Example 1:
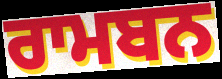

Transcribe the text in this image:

ਰਾਮਬਨ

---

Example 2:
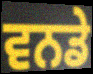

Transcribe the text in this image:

ਵਨਡੇ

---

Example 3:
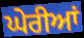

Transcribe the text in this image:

ਘੇਰੀਆਂ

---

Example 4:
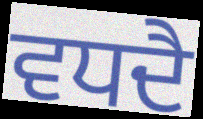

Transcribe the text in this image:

ਵਧਦੈ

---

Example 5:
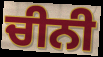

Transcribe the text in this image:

ਚੀਨੀ